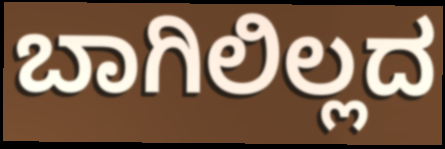
ಬಾಗಿಲಿಲ್ಲದ